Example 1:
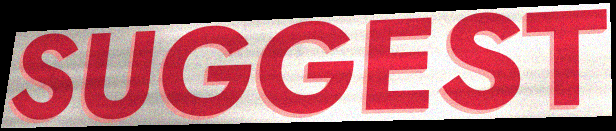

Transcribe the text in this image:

SUGGEST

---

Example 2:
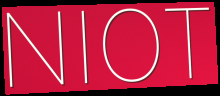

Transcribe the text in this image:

NIOT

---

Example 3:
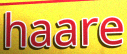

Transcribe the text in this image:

haare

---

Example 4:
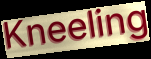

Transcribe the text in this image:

Kneeling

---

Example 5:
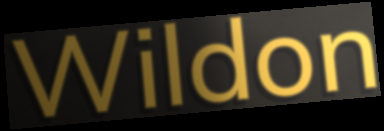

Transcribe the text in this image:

Wildon